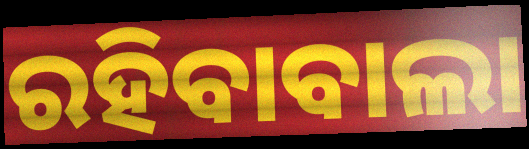
ରହିବାବାଲା